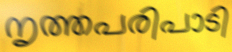
നൃത്തപരിപാടി